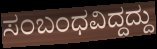
ಸಂಬಂಧವಿದ್ದದ್ದು